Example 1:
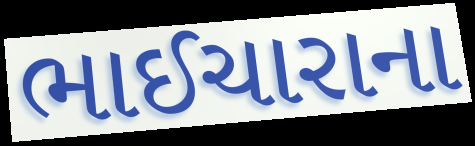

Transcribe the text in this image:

ભાઈચારાના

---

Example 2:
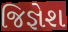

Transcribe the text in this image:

જિજ્ઞેશ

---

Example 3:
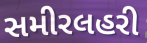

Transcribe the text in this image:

સમીરલહરી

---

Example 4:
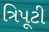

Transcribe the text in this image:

ત્રિપૂટી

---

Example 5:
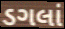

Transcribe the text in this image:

ડગલાં